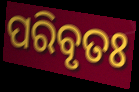
ପରିବୃତଃ